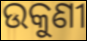
ଉକୁଣୀ